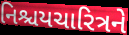
નિશ્ચયચારિત્રને